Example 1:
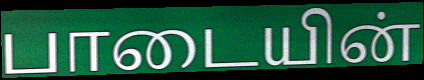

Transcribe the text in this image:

பாடையின்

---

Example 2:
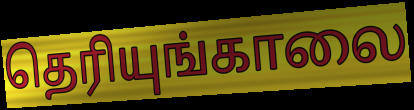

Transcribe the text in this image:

தெரியுங்காலை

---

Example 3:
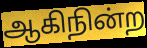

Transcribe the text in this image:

ஆகிநின்ற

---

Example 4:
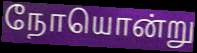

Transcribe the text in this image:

நோயொன்று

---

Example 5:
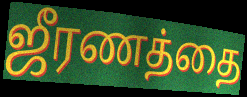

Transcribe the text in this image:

ஜீரணத்தை